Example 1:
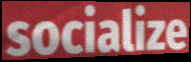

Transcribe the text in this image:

socialize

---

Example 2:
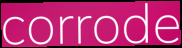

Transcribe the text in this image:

corrode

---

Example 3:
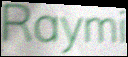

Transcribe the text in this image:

Raymi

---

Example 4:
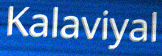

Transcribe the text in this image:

Kalaviyal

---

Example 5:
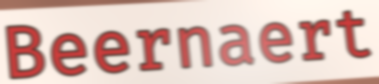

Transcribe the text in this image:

Beernaert